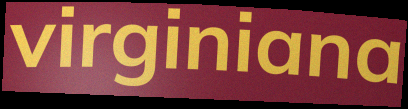
virginiana